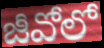
జీవోలో